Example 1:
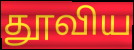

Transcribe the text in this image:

தூவிய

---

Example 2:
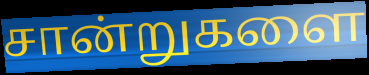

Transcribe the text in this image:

சான்றுகளை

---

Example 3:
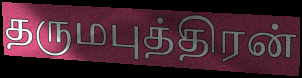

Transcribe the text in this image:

தருமபுத்திரன்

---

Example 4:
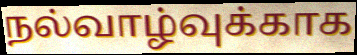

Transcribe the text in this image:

நல்வாழ்வுக்காக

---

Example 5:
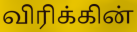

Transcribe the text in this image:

விரிக்கின்